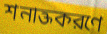
শনাক্তকরণে